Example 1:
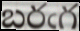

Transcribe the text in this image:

బరఁగ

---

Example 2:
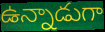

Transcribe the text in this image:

ఉన్నాడుగా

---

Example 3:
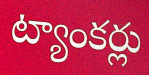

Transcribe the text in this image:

ట్యాంకర్లు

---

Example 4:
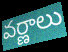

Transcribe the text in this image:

వర్ణాలు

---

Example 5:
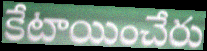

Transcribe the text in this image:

కేటాయించేరు